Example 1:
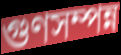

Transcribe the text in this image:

গুণসম্পন্ন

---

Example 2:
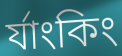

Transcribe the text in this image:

র্যাংকিং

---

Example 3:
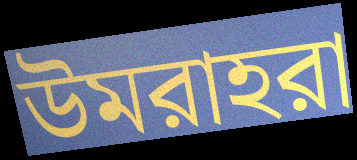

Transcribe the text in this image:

উমরাহরা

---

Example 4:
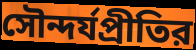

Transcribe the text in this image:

সৌন্দর্যপ্রীতির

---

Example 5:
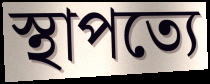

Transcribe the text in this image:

স্থাপত্যে